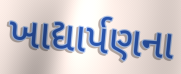
ખાદ્યાર્પણના